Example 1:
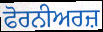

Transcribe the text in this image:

ਫੋਰਨੀਅਰਜ਼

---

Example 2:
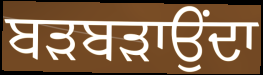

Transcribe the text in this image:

ਬੜਬੜਾਉਂਦਾ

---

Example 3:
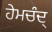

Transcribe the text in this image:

ਹੇਮਚੰਦ੍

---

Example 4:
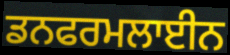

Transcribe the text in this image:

ਡਨਫਰਮਲਾਈਨ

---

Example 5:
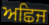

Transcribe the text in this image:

ਅਛਿਜ